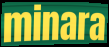
minara